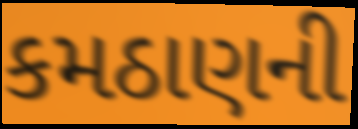
કમઠાણની